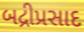
બદ્રીપ્રસાદ